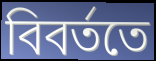
বিবর্ততে